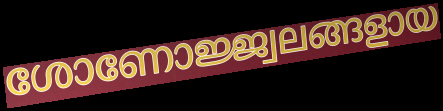
ശോണോജ്ജ്വലങ്ങളായ